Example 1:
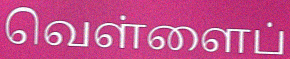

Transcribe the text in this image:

வெள்ளைப்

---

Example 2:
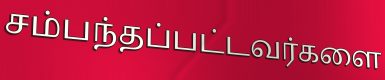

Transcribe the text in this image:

சம்பந்தப்பட்டவர்களை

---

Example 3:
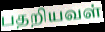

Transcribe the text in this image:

பதறியவள்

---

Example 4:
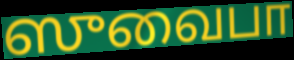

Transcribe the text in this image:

ஸுவைபா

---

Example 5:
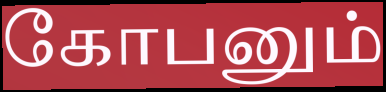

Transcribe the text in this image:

கோபனும்